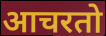
आचरतो